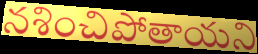
నశించిపోతాయని